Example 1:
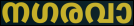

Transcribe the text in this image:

നഗരവാ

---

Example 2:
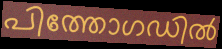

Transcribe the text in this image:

പിത്തോഗഡിൽ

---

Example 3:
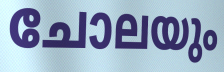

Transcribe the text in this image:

ചോലയും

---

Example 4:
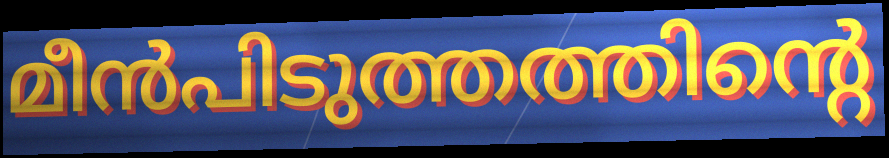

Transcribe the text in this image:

മീൻപിടുത്തത്തിന്റെ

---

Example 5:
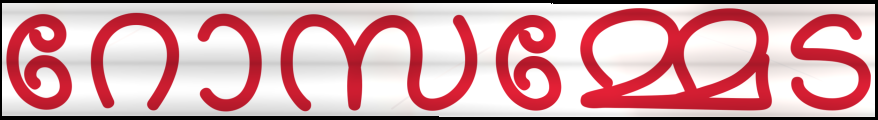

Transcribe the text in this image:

റോസമ്മേട